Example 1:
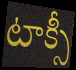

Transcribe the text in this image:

టాక్సీ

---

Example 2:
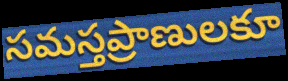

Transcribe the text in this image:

సమస్తప్రాణులకూ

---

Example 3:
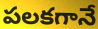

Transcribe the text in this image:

పలకగానే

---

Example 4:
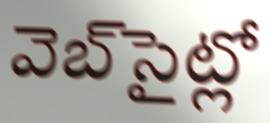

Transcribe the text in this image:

వెబ్‌సైట్లో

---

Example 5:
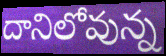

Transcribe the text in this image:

దానిలోవున్న